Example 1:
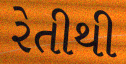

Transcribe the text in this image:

રેતીથી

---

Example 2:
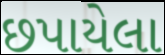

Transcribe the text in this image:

છપાયેલા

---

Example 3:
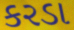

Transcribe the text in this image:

કરડા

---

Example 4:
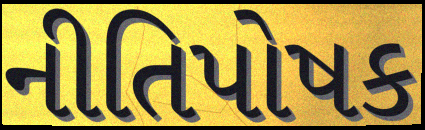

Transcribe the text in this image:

નીતિપોષક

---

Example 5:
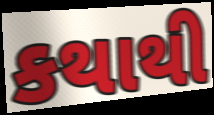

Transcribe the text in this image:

કથાથી